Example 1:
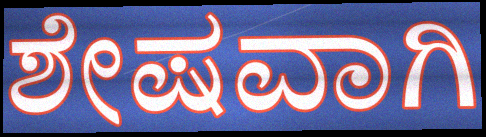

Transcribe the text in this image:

ಶೇಷವಾಗಿ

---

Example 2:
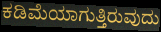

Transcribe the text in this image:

ಕಡಿಮೆಯಾಗುತ್ತಿರುವುದು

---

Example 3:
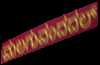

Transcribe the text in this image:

ಮಲಗುವಂದದಲ್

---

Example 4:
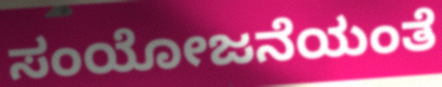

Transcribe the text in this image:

ಸಂಯೋಜನೆಯಂತೆ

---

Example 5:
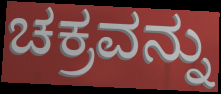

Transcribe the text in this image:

ಚಕ್ರವನ್ನು